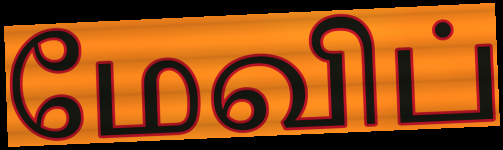
மேவிப்